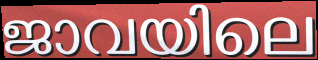
ജാവയിലെ